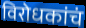
विरोधकांचं